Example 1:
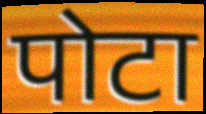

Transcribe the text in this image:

पोटा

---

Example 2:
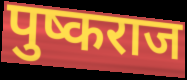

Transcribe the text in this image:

पुष्कराज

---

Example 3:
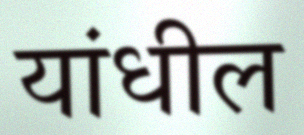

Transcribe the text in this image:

यांधील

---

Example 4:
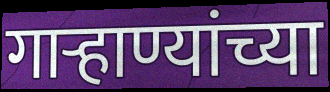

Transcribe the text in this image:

गाऱ्हाण्यांच्या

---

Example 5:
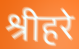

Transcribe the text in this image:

श्रीहरे